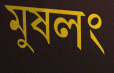
মুষলং